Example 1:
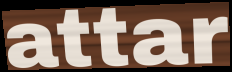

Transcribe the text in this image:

attar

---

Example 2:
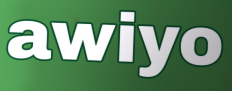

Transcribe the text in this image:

awiyo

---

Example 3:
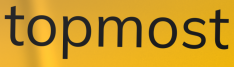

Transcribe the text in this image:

topmost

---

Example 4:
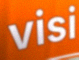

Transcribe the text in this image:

visi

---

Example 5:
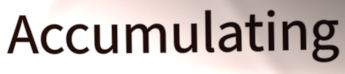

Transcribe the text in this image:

Accumulating